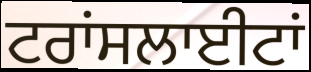
ਟਰਾਂਸਲਾਈਟਾਂ